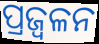
ପ୍ରଜ୍ବଳନ